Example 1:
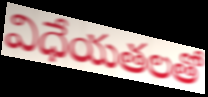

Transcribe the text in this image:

విధేయతలతో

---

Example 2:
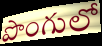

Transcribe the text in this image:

పొంగులో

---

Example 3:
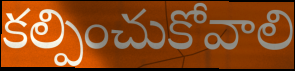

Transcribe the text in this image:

కల్పించుకోవాలి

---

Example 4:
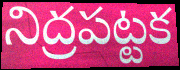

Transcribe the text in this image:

నిద్రపట్టక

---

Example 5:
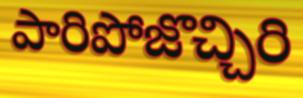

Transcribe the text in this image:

పారిపోజొచ్చిరి